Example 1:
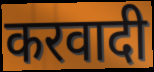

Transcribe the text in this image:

करवादी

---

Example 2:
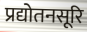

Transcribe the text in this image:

प्रद्योतनसूरि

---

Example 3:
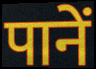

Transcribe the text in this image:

पानें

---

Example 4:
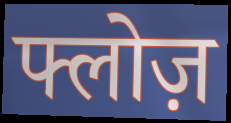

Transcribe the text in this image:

फ्लोज़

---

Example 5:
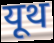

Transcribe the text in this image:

यूथ